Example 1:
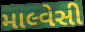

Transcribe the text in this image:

માલ્વેસી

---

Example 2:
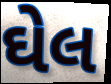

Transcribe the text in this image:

ઘેલ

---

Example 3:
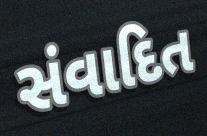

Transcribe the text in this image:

સંવાદિત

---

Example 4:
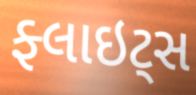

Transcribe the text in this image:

ફ્લાઇટ્સ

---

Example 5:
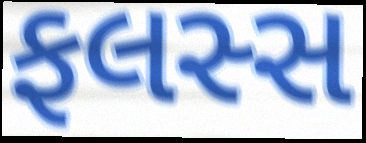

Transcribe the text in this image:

ફલસ્સ